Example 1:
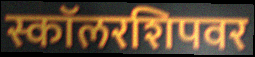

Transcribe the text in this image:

स्कॉलरशिपवर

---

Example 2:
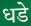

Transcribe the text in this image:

धडे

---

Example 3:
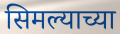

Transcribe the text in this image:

सिमल्याच्या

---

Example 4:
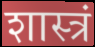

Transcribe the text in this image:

शास्त्रं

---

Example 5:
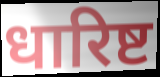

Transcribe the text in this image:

धारिष्ट